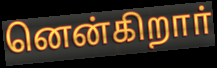
னென்கிறார்